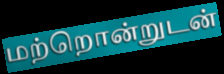
மற்றொன்றுடன்